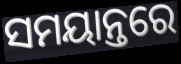
ସମୟାନ୍ତରେ